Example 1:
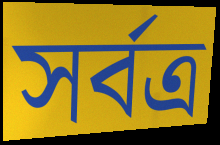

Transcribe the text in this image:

সর্বত্র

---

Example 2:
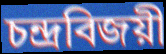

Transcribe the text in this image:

চন্দ্রবিজয়ী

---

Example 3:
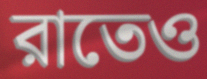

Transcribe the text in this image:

রাতেও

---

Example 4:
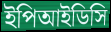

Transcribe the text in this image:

ইপিআইডিসি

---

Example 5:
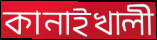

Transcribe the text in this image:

কানাইখালী